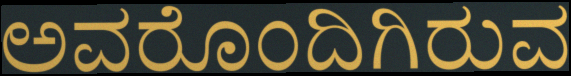
ಅವರೊಂದಿಗಿರುವ